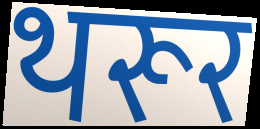
थरूर